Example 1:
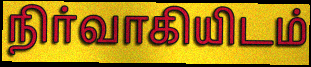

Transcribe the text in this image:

நிர்வாகியிடம்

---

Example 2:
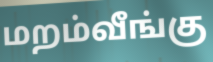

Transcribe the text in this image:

மறம்வீங்கு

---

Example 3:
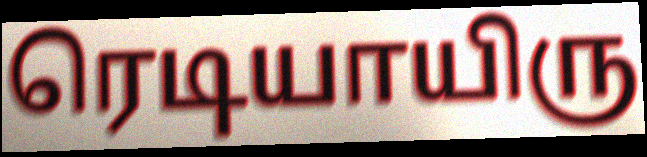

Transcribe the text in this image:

ரெடியாயிரு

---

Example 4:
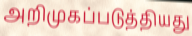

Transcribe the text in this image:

அறிமுகப்படுத்தியது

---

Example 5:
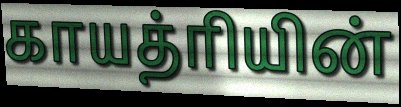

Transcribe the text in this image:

காயத்ரியின்